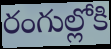
రంగుల్లోకి